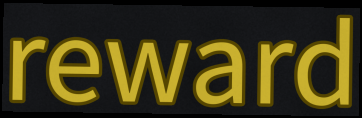
reward